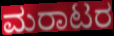
ಮರಾಟರ